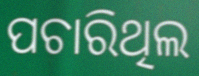
ପଚାରିଥିଲ